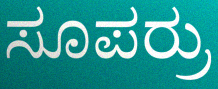
ಸೂಪರ್ರು